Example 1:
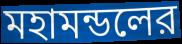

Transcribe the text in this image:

মহামন্ডলের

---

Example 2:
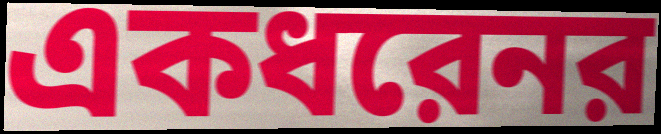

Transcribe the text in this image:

একধরেনর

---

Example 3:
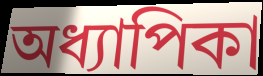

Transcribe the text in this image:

অধ্যাপিকা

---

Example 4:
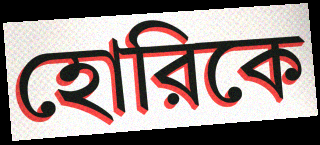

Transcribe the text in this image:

হোরিকে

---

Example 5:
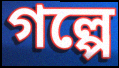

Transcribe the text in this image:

গল্পে